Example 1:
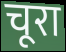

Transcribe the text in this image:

चूरा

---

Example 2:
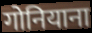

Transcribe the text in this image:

गोनियाना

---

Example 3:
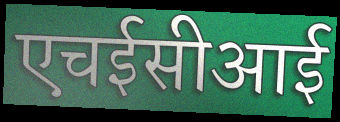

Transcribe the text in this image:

एचईसीआई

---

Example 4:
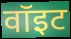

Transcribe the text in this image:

वॉइट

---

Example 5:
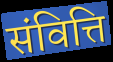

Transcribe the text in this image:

संवित्ति